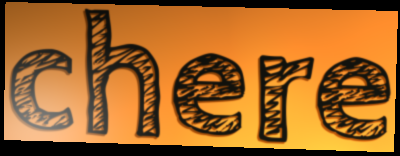
chere